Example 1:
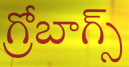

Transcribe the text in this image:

గ్రోబాగ్స్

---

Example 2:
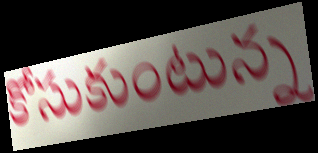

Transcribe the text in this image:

కోసుకుంటున్న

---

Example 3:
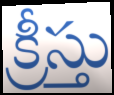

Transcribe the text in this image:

క్రీస్తు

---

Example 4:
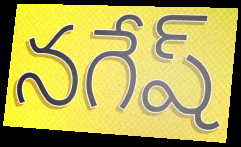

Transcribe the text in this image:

నగేష్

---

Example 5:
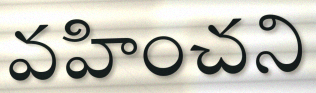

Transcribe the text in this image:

వహించని